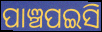
ପାଞ୍ଚପଇସି